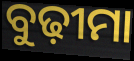
ବୁଢ଼ୀମା